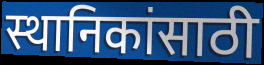
स्थानिकांसाठी